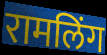
रामलिंग